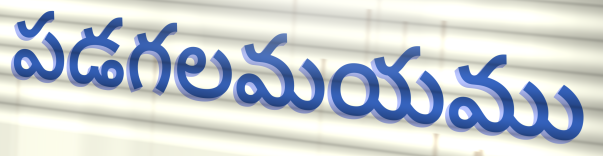
పడగలమయము